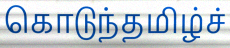
கொடுந்தமிழ்ச்